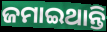
ଜମାଇଥାନ୍ତି